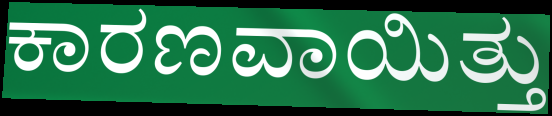
ಕಾರಣವಾಯಿತ್ತು